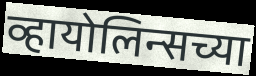
व्हायोलिन्सच्या